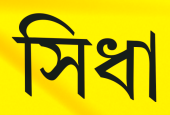
সিধা